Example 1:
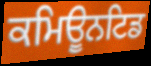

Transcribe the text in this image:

ਕਮਿਊਨਟਿਡ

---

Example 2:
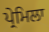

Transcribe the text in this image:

ਪ੍ਰੇਮਿਲਾ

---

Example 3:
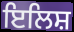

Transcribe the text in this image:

ਇਲਿਸ਼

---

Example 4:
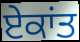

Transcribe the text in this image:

ਏਕਾਂਤ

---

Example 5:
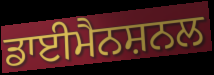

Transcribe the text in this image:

ਡਾਈਮੈਨਸ਼ਨਲ